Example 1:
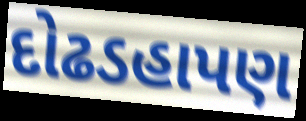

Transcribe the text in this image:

દોઢડહાપણ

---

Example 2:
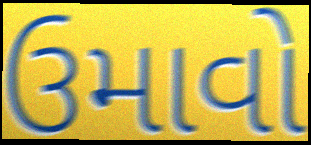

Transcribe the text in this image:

ઉમાવો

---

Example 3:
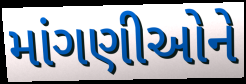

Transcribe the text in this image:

માંગણીઓને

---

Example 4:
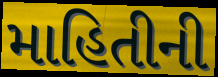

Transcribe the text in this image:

માહિતીની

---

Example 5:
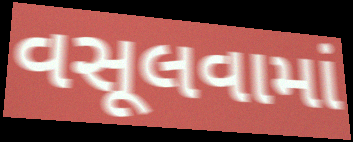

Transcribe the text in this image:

વસૂલવામાં